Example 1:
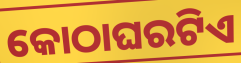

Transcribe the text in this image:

କୋଠାଘରଟିଏ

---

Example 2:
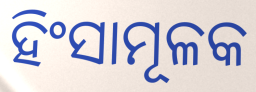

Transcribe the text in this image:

ହିଂସାମୂଳକ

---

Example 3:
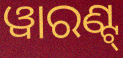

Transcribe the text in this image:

ୱାରଣ୍ଟ୍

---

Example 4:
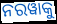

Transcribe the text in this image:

ନରୱାକୁ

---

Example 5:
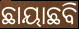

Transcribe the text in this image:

ଛାୟାଛବି